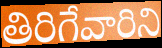
తిరిగేవారిని